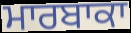
ਮਾਰਬਾਕਾ